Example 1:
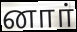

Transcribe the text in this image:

னார்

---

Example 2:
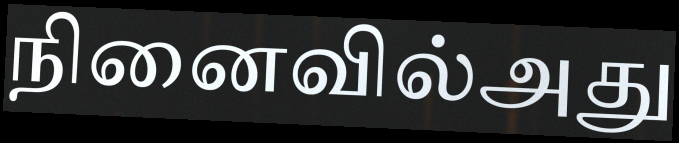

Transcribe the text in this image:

நினைவில்அது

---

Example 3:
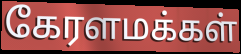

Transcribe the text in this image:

கேரளமக்கள்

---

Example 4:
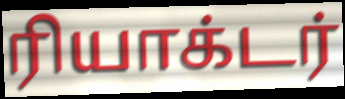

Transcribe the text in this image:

ரியாக்டர்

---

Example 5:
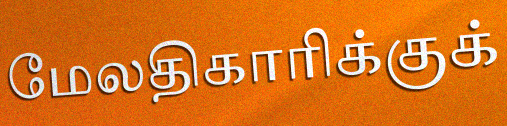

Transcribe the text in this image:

மேலதிகாரிக்குக்